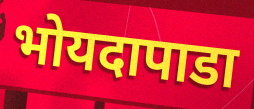
भोयदापाडा